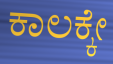
ಕಾಲಕ್ಕೇ